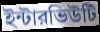
ইন্টারভিউটি